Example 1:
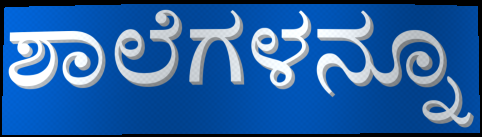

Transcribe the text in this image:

ಶಾಲೆಗಳನ್ನೂ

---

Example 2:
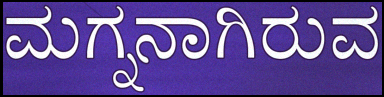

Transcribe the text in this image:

ಮಗ್ನನಾಗಿರುವ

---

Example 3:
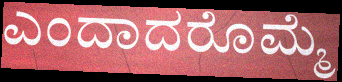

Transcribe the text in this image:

ಎಂದಾದರೊಮ್ಮೆ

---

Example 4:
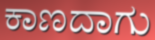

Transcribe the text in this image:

ಕಾಣದಾಗು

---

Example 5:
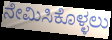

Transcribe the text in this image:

ನೇಮಿಸಿಕೊಳ್ಳಲು